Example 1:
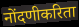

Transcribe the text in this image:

नोंदणीकरिता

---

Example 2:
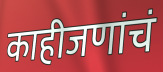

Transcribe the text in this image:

काहीजणांचं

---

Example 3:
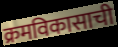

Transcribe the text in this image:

क्रमविकासाची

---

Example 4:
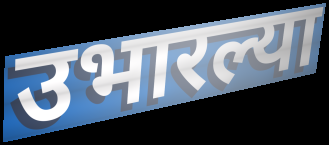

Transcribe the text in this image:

उभारल्या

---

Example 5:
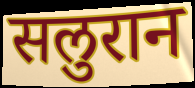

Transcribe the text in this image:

सलुरान